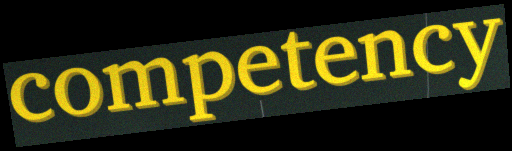
competency